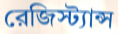
রেজিস্ট্যান্স